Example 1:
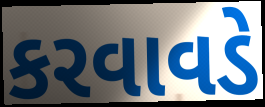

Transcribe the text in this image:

કરવાવડે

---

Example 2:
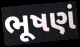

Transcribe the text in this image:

ભૂષણં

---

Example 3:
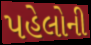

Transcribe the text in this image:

પહેલોની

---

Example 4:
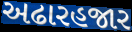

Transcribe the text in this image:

અઢારહજાર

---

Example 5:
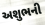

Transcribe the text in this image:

અશુભની